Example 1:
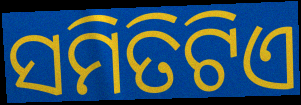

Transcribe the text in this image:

ସମିତିଟିଏ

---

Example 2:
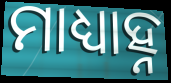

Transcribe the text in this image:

ମାଧ୍ୟାହ୍ନ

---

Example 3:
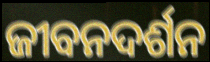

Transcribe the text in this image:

ଜୀବନଦର୍ଶନ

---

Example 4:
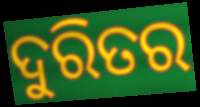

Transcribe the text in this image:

ଦୁରିତର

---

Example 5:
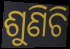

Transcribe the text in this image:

ଶୁଣିଚି